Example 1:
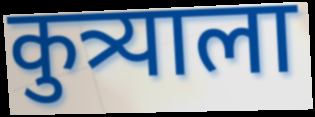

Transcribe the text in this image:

कुत्र्याला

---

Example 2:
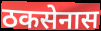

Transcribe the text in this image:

ठकसेनास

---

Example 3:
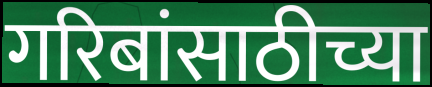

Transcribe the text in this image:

गरिबांसाठीच्या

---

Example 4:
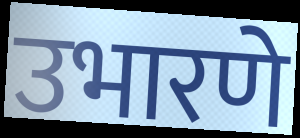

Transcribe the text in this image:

उभारणे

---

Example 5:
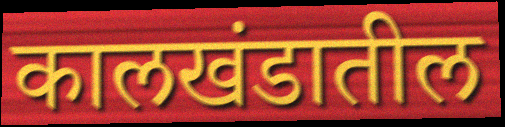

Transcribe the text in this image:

कालखंडातील